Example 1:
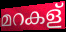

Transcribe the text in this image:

മറകള്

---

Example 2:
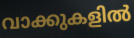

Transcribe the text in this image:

വാക്കുകളിൽ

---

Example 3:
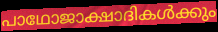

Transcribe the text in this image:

പാഥോജാക്ഷാദികൾക്കും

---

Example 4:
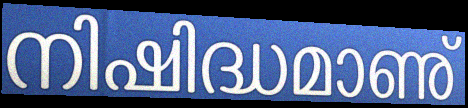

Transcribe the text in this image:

നിഷിദ്ധമാണു്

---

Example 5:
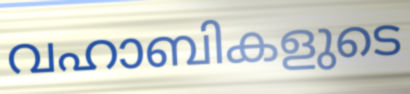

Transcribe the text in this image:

വഹാബികളുടെ